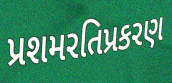
પ્રશમરતિપ્રકરણ